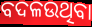
ବଦଳଉଥିବା